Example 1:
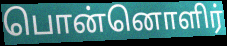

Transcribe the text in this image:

பொன்னொளிர்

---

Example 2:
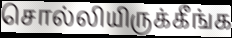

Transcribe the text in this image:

சொல்லியிருக்கீங்க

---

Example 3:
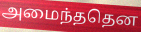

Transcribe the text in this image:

அமைந்ததென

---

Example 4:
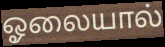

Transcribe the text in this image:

ஓலையால்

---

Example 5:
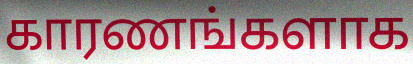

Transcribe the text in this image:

காரணங்களாக